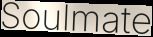
Soulmate